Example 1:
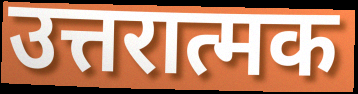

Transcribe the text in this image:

उत्तरात्मक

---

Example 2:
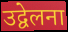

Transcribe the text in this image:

उद्वेलना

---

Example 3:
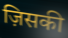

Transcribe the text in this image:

ज़िसकी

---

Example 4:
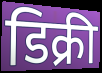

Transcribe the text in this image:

डिक्री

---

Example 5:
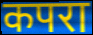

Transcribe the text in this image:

कपरा